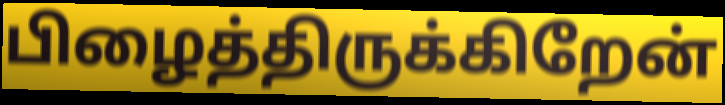
பிழைத்திருக்கிறேன்